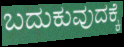
ಬದುಕುವುದಕ್ಕೆ